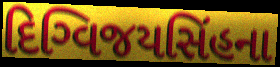
દિગ્વિજયસિંહના